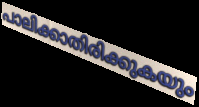
പാലിക്കാതിരിക്കുകയും